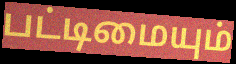
பட்டிமையும்